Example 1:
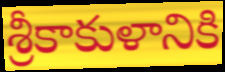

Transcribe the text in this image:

శ్రీకాకుళానికి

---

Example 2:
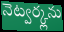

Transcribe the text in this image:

నెట్వర్క్లను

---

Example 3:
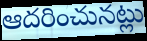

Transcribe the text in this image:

ఆదరించునట్లు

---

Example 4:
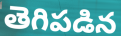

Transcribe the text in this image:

తెగిపడిన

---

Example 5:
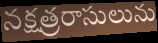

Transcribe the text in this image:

నక్షత్రరాసులును